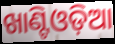
ଖାଣ୍ଟିଓଡ଼ିଆ